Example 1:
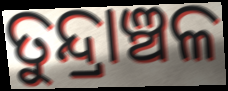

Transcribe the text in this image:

ତୁନ୍ଦ୍ରାଞ୍ଚଳ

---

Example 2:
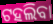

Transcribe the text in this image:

ଟହଲିବା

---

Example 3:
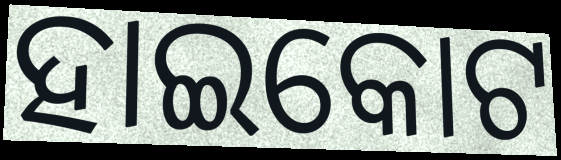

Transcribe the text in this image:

ହାଇକୋଟ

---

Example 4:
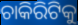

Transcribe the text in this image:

ଚାକିରିଟିକୁ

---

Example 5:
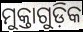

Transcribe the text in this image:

ମୁକ୍ତାଗୁଡ଼ିକ